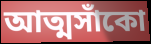
আত্মসাঁকো